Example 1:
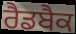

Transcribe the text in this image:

ਰੈਡਬੈਕ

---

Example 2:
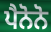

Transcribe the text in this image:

ਪੈਨੋਨੋ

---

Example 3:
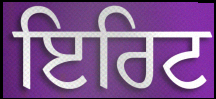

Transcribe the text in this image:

ਇਰਿਟ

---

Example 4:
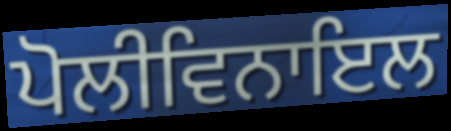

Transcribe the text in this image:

ਪੋਲੀਵਿਨਾਇਲ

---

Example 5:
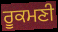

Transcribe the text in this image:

ਰੂਕਮਣੀ